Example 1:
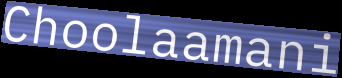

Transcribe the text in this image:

Choolaamani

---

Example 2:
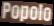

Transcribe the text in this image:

Popolo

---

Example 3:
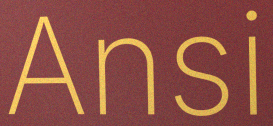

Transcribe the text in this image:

Ansi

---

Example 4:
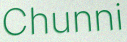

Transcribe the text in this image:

Chunni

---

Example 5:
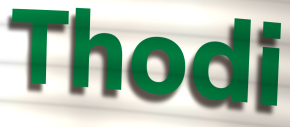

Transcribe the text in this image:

Thodi